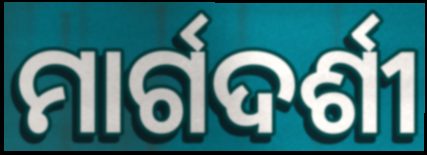
ମାର୍ଗଦର୍ଶୀ